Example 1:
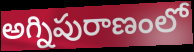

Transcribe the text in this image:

అగ్నిపురాణంలో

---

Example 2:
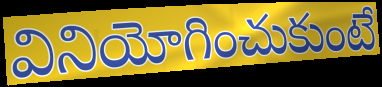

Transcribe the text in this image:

వినియోగించుకుంటే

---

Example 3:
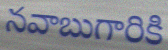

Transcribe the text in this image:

నవాబుగారికి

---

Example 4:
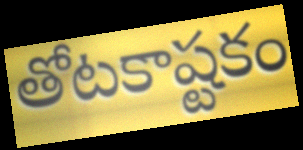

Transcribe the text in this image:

తోటకాష్టకం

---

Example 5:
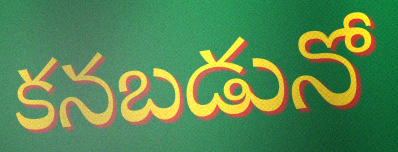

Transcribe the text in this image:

కనబడునో